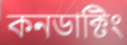
কনডাক্টিং